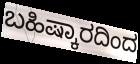
ಬಹಿಷ್ಕಾರದಿಂದ